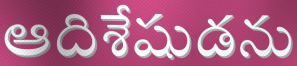
ఆదిశేషుడను